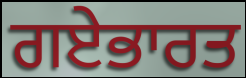
ਗਏਭਾਰਤ